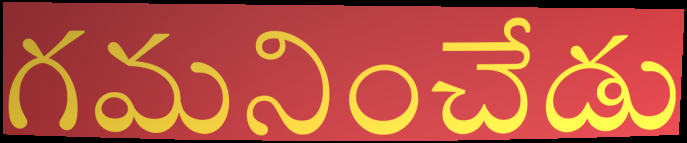
గమనించేడు